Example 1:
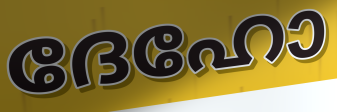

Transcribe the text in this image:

ദേഹോ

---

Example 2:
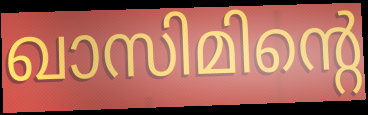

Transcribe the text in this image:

ഖാസിമിന്റെ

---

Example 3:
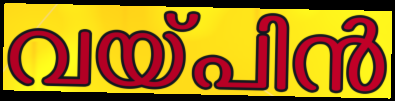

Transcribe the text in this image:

വയ്പിൻ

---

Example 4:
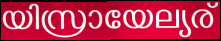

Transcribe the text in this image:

യിസ്രായേല്യര്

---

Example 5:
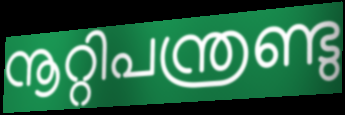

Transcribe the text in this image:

നൂറ്റിപന്ത്രണ്ടു